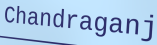
Chandraganj